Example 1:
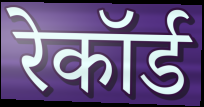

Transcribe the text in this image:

रेकॉर्ड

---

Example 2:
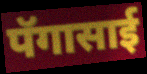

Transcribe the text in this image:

पॅगासाई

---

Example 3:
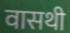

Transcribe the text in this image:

वासथी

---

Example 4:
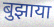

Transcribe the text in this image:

बुझाया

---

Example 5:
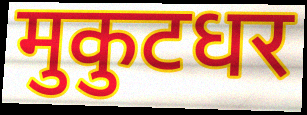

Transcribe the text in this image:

मुकुटधर